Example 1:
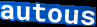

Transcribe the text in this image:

autous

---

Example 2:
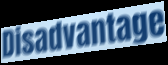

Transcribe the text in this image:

Disadvantage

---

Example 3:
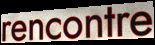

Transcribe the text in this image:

rencontre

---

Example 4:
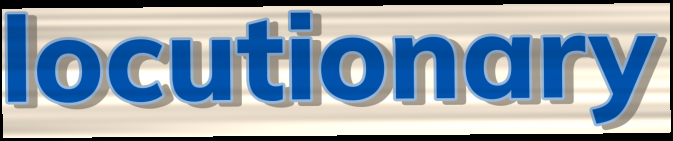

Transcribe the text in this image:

locutionary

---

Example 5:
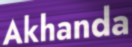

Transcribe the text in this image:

Akhanda